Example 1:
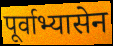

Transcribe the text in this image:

पूर्वाभ्यासेन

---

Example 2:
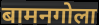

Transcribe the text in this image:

बामनगोला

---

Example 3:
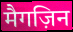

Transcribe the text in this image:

मैगज़िन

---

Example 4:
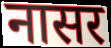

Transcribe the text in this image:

नासर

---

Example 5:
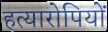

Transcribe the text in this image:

हत्यारोपियों